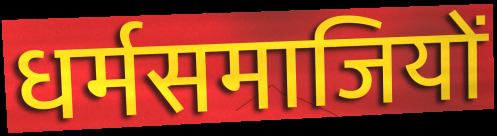
धर्मसमाजियों